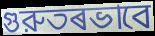
গুৰুতৰভাবে